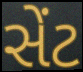
સેંટ